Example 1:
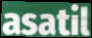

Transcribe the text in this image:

asatil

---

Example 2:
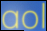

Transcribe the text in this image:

aol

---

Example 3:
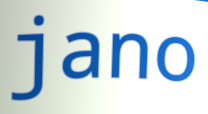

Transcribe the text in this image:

jano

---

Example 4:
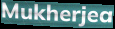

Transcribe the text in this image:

Mukherjea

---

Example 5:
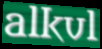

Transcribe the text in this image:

alkul